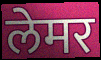
लेमर